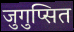
जुगुप्सित